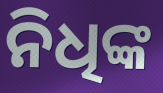
ନିଧିଙ୍କ